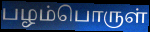
பழம்பொருள்